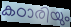
കഠാരിയും